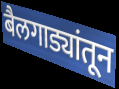
बैलगाड्यांतून